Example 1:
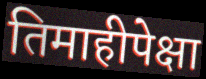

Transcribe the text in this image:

तिमाहीपेक्षा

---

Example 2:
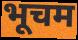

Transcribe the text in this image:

भूचम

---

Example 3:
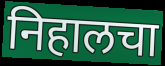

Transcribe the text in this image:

निहालचा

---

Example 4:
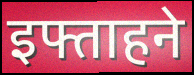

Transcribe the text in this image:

इफ्ताहने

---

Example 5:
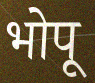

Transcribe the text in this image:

भोपू